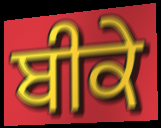
ਬੀਕੇ